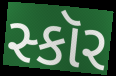
સ્કૉર